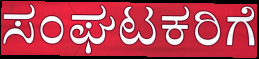
ಸಂಘಟಕರಿಗೆ